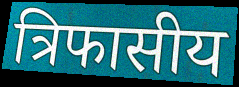
त्रिफासीय